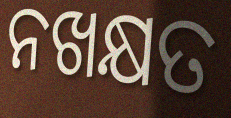
ନଖକ୍ଷତ